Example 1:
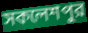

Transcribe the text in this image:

সকলেশপুর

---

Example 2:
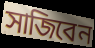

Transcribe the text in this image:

সাজিবেন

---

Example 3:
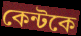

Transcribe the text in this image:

কেন্টকে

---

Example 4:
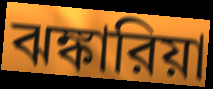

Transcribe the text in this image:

ঝঙ্কারিয়া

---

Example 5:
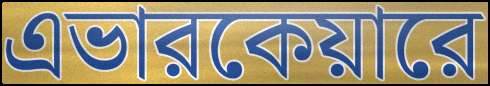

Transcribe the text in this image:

এভারকেয়ারে